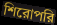
শিরোপরি